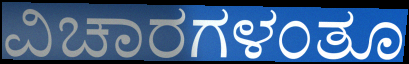
ವಿಚಾರಗಳಂತೂ